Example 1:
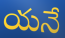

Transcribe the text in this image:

యనే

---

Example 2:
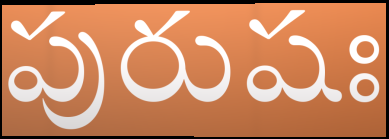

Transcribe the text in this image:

పురుషః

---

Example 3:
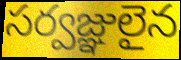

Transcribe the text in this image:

సర్వజ్ఞులైన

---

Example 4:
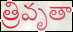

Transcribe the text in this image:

త్రివృతా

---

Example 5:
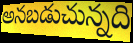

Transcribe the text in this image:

అనబడుచున్నది